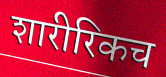
शारीरिकच